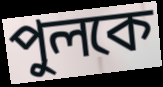
পুলকে